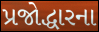
પ્રજોદ્ધારના